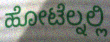
ಹೋಟೆಲ್ನಲ್ಲಿ